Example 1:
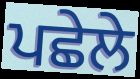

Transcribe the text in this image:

ਪਛੇਲੇ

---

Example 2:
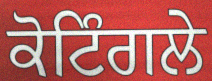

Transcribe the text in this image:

ਕੋਟਿੰਗਲੇ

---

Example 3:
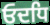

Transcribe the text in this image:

ਓਦਧਿ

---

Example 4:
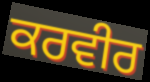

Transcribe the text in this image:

ਕਰਵੀਰ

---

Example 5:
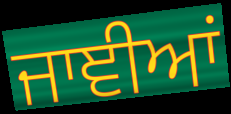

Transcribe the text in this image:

ਜਾਞੀਆਂ